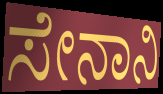
ಸೇನಾನಿ